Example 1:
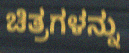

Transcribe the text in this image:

ಚಿತ್ರಗಳನ್ನು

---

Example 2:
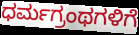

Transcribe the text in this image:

ಧರ್ಮಗ್ರಂಥಗಳಿಗೆ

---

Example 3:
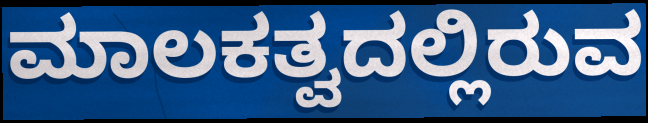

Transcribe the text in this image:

ಮಾಲಕತ್ವದಲ್ಲಿರುವ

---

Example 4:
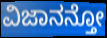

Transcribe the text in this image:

ವಿಜಾನನ್ತೋ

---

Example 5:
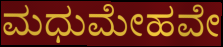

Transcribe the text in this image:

ಮಧುಮೇಹವೇ